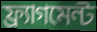
ফ্র্যাগমেন্ট